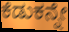
ಕೆಡುಕನ್ನೇ